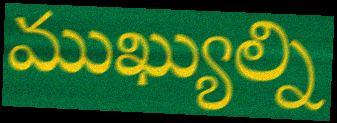
ముఖ్యుల్ని